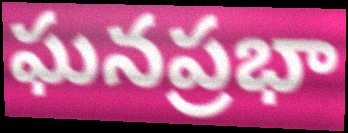
ఘనప్రభా